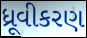
ધ્રૂવીકરણ